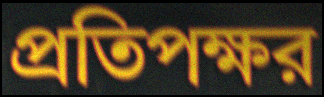
প্রতিপক্ষর